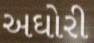
અઘોરી